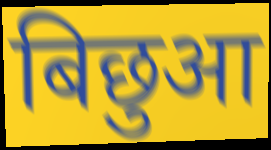
बिछुआ